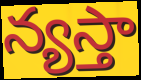
న్యస్తా